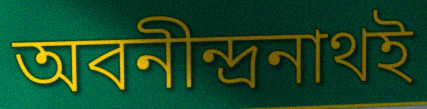
অবনীন্দ্রনাথই